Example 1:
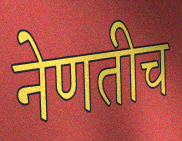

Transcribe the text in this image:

नेणतीच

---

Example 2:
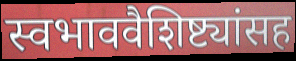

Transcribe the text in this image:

स्वभाववैशिष्ट्यांसह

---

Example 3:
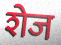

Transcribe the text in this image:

शेज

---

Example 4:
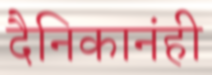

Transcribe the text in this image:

दैनिकानंही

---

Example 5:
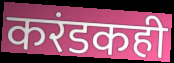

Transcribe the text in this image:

करंडकही